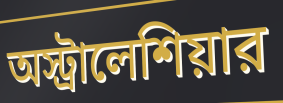
অস্ট্রালেশিয়ার